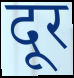
दूर